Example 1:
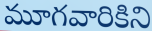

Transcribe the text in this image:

మూగవారికిని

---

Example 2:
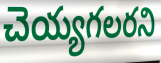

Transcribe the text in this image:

చెయ్యగలరని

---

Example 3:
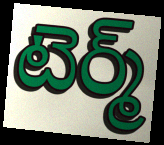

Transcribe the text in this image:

టెర్మ్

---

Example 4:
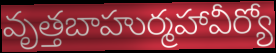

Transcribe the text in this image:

వృత్తబాహుర్మహావీర్యో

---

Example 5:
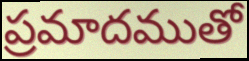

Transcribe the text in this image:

ప్రమాదముతో